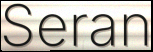
Seran